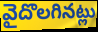
వైదొలగినట్లు